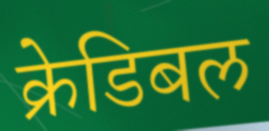
क्रेडिबल